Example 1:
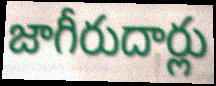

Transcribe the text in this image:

జాగీరుదార్లు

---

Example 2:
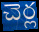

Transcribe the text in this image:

చెర్ల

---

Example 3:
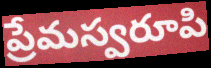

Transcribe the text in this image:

ప్రేమస్వరూపి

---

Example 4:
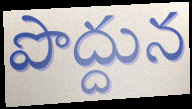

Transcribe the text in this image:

పొద్దున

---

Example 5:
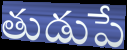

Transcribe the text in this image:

తుడుపే